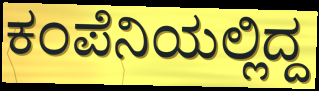
ಕಂಪೆನಿಯಲ್ಲಿದ್ದ